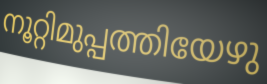
നൂറ്റിമുപ്പത്തിയേഴു